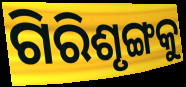
ଗିରିଶୃଙ୍ଗକୁ